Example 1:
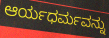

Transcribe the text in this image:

ಆರ್ಯಧರ್ಮವನ್ನು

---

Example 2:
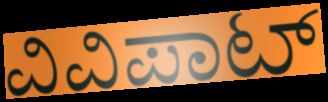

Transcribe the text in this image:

ವಿವಿಪಾಟ್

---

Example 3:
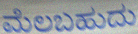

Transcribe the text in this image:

ಮೆಲಬಹುದು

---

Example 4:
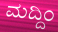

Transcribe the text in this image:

ಮದ್ದಿಂ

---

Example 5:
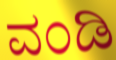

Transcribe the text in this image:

ವಂಡಿ